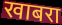
खाबरा